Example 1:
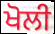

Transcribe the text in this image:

ਖੋਲੀ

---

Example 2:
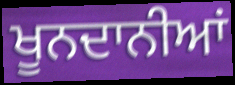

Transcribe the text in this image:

ਖੂਨਦਾਨੀਆਂ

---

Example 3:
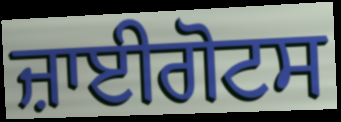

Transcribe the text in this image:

ਜ਼ਾਈਗੋਟਸ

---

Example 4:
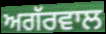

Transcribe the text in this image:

ਅਗੱਰਵਾਲ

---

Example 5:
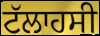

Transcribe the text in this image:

ਟੱਲਾਹਸੀ